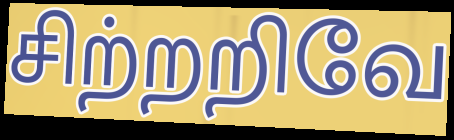
சிற்றறிவே